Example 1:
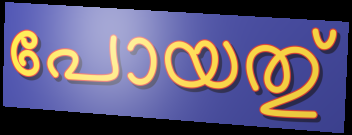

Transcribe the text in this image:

പോയതു്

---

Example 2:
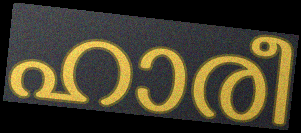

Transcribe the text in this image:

ഹാരീ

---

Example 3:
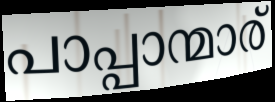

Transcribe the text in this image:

പാപ്പാന്മാര്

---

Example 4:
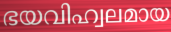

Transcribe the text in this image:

ഭയവിഹ്വലമായ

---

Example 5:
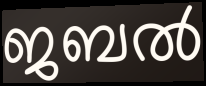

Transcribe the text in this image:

ജബൽ